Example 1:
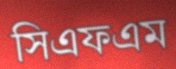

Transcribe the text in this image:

সিএফএম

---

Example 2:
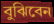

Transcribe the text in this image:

বুঝিবেন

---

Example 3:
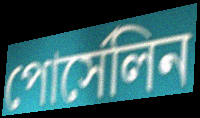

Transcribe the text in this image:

পোর্সেলিন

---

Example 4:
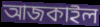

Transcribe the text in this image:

আজকাইল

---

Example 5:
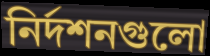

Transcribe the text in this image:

নির্দশনগুলো